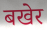
बखेर